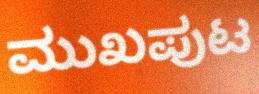
ಮುಖಪುಟ